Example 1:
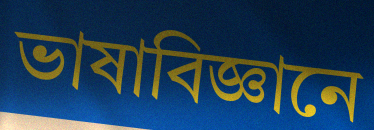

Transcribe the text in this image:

ভাষাবিজ্ঞানে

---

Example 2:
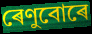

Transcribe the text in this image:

ৰেণুবোৰে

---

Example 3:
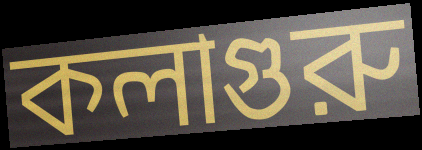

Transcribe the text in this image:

কলাগুৰু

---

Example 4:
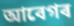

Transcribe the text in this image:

আবেগৰ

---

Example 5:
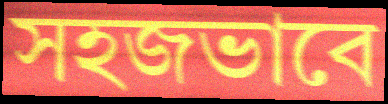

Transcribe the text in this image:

সহজভাবে